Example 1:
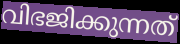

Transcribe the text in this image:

വിഭജിക്കുന്നത്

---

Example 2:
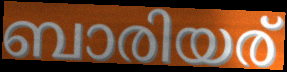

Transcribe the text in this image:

ബാരിയര്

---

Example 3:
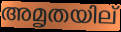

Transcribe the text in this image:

അമൃതയില്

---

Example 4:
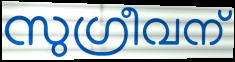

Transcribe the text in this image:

സുഗ്രീവന്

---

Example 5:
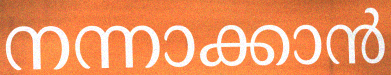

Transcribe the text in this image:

നന്നാക്കാൻ